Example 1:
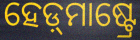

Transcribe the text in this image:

ହେଡ଼୍‍ମାଷ୍ଟ୍ରେ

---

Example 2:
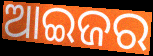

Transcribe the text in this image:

ଆଇଜର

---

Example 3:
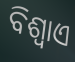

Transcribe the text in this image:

ବିଶ୍ୱାଏ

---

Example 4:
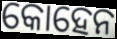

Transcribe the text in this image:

କୋହେନ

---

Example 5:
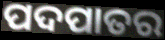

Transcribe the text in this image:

ପଦପାତର